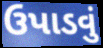
ઉપાડવું